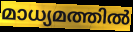
മാധ്യമത്തിൽ